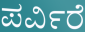
ಪರ್ವಿರೆ